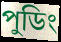
পুডিং